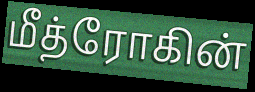
மீத்ரோகின்